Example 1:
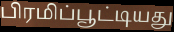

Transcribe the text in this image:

பிரமிப்பூட்டியது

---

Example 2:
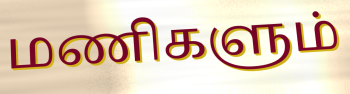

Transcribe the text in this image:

மணிகளும்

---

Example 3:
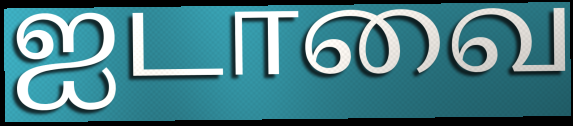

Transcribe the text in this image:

ஐடாவை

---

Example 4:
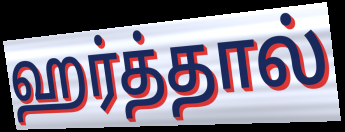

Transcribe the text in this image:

ஹர்த்தால்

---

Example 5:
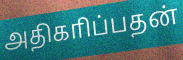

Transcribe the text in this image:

அதிகரிப்பதன்